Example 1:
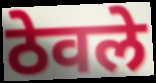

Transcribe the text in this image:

ठेवले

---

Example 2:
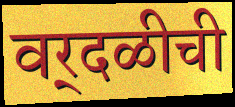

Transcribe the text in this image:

वर्दळीची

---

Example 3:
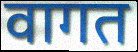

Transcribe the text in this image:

वागत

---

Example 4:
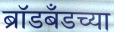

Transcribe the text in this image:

ब्रॉडबँडच्या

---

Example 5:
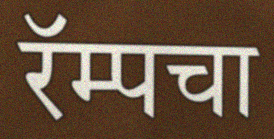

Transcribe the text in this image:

रॅम्पचा